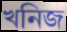
খনিজ